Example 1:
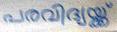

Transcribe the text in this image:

പരവിദ്യയ്ക്ക്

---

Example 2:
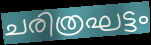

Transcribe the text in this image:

ചരിത്രഘട്ടം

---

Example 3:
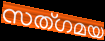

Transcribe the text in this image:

സത്ഗമയ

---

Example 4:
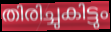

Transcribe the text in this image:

തിരിച്ചുകിട്ടും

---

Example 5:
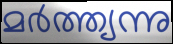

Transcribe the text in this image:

മർത്ത്യന്നു